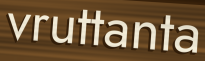
vruttanta